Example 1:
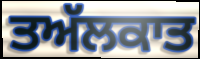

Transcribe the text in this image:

ਤਅੱਲਕਾਤ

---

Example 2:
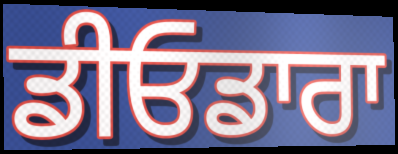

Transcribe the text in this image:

ਡੀਓਡਾਰਾ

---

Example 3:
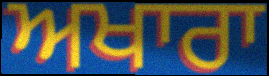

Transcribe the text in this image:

ਅਖਾਰਾ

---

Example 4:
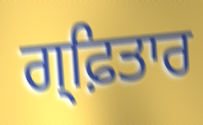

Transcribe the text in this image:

ਗ੍ਫ਼ਿਤਾਰ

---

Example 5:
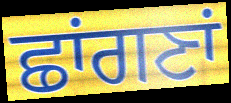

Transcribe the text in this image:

ਛਾਂਗਣਾਂ